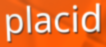
placid